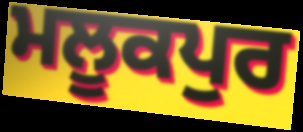
ਮਲੂਕਪੁਰ